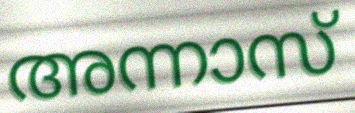
അന്നാസ്